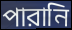
পারানি